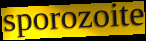
sporozoite